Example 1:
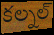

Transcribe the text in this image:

కల్నల్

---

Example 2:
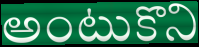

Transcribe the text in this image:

అంటుకొని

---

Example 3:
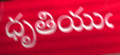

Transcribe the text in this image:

ధృతియుఁ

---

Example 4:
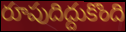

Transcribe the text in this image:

రూపుదిద్దుకొంది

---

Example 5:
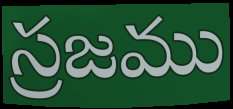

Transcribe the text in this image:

స్రజము